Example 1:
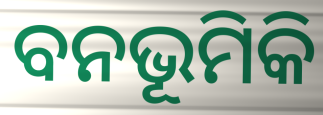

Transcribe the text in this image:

ବନଭୂମିକି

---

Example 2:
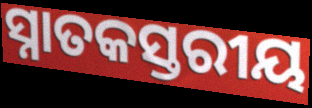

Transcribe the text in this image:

ସ୍ନାତକସ୍ତରୀୟ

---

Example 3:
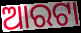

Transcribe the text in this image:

ଆରଟା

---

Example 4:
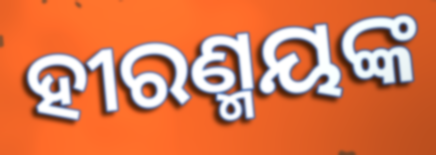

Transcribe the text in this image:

ହୀରଣ୍ମୟଙ୍କ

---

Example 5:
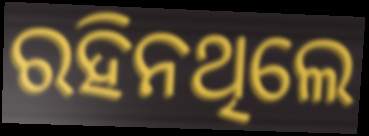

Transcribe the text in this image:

ରହିନଥିଲେ